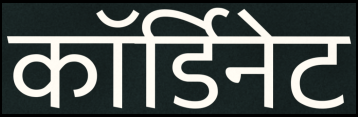
कॉर्डिनेट